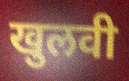
खुलवी